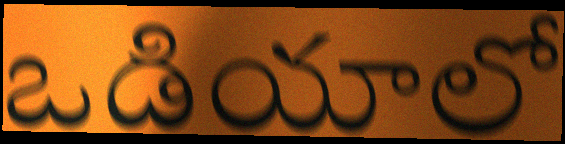
ఒడియాలో